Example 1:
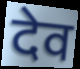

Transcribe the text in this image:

देव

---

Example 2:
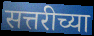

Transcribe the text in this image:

सत्तरीच्या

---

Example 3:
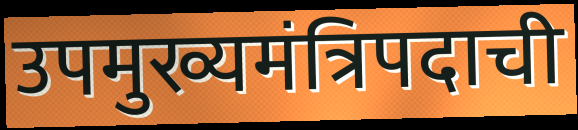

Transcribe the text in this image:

उपमुख्यमंत्रिपदाची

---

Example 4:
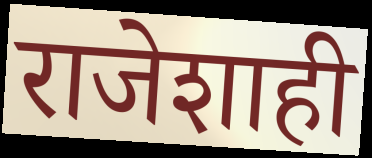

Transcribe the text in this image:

राजेशाही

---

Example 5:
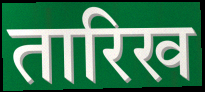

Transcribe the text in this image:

तारिख